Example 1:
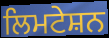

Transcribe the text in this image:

ਲਿਮਟੇਸ਼ਨ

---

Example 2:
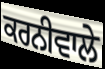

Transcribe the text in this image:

ਕਰਨੀਵਾਲੇ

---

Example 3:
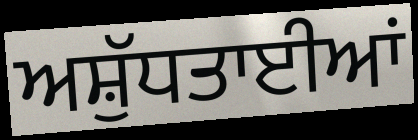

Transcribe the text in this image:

ਅਸ਼ੁੱਧਤਾਈਆਂ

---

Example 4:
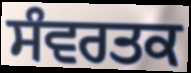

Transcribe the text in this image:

ਸੰਵਰਤਕ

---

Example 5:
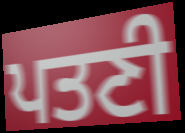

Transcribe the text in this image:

ਪਤਣੀ